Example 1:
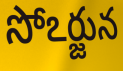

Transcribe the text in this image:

సోఽర్జున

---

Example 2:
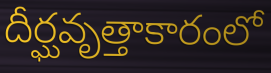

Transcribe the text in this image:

దీర్ఘవృత్తాకారంలో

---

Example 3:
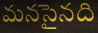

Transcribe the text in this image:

మనసైనది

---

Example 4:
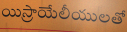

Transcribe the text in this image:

యిస్రాయేలీయులతో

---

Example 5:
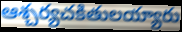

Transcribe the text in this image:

ఆశ్చర్యచకితులయ్యారు